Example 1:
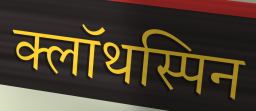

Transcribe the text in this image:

क्लॉथस्पिन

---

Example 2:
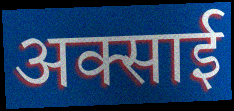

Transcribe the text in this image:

अक्साई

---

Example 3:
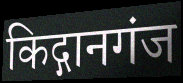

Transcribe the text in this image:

किद्गानगंज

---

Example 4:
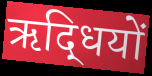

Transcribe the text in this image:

ऋद्धियों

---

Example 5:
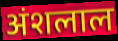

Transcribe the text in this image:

अंशलाल